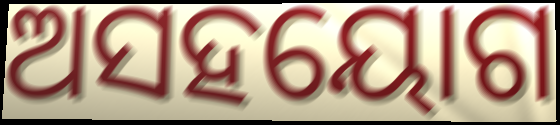
ଅସହୟୋଗ